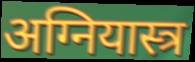
अग्नियास्त्र